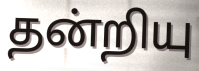
தன்றியு